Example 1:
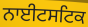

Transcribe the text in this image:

ਨਾਈਟਸਟਿਕ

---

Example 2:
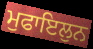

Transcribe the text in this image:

ਮੁਫਾਇਲੁਨ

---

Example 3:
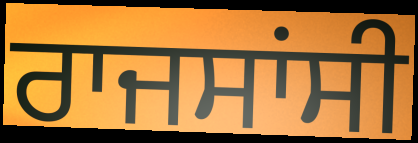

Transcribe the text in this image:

ਰਾਜਸਾਂਸੀ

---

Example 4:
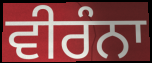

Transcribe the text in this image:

ਵੀਰੰਨਾ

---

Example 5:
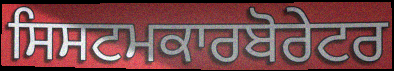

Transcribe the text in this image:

ਸਿਸਟਮਕਾਰਬੋਰੇਟਰ